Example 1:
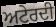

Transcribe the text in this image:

ਅਟੇਰਦੀ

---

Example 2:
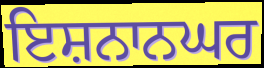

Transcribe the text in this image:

ਇਸ਼ਨਾਨਘਰ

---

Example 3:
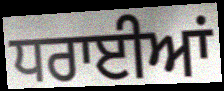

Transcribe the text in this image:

ਧਰਾਈਆਂ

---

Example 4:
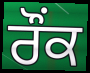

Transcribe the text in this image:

ਰੌਂਕ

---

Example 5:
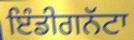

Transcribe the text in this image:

ਇੰਡੀਗਨੱਟਾ